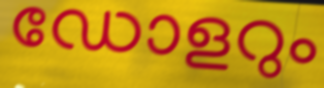
ഡോളറും